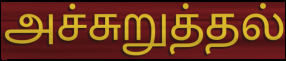
அச்சுறுத்தல்